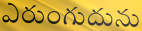
ఎరుంగుదును